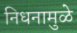
निधनामुळे